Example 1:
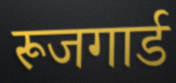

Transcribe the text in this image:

रूजगार्ड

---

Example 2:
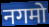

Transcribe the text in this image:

नगमो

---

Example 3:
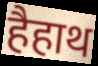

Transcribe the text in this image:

हैहाथ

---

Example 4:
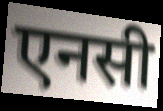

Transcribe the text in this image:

एनसी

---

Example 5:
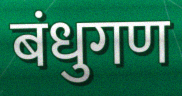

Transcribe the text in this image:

बंधुगण